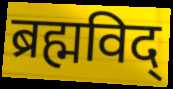
ब्रह्मविद्